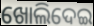
ଖୋଲିଦେଇ